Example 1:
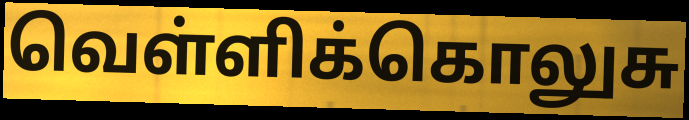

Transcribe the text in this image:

வெள்ளிக்கொலுசு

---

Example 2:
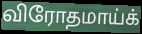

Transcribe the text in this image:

விரோதமாய்க்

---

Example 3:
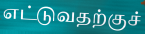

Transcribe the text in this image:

எட்டுவதற்குச்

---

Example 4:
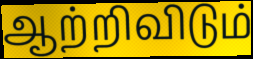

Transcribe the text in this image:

ஆற்றிவிடும்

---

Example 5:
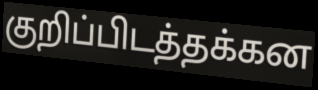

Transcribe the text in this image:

குறிப்பிடத்தக்கன